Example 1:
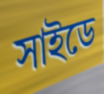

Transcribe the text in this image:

সাইডে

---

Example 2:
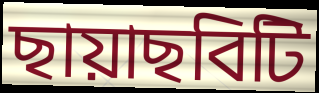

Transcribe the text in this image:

ছায়াছবিটি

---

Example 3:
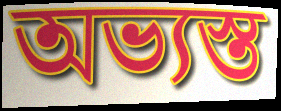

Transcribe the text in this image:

অভ্যস্ত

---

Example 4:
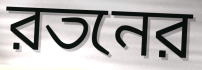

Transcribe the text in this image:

রতনের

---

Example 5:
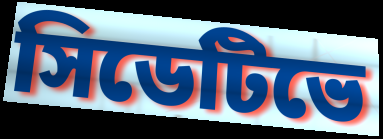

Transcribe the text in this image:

সিডেটিভে